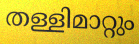
തള്ളിമാറ്റും